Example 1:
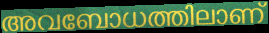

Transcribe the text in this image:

അവബോധത്തിലാണ്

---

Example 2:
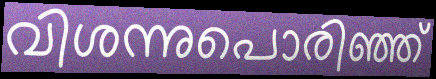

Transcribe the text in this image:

വിശന്നുപൊരിഞ്ഞ്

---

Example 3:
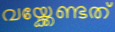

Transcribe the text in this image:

വയ്ക്കേണ്ടത്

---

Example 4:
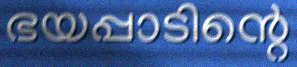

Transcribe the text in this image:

ഭയപ്പാടിന്റെ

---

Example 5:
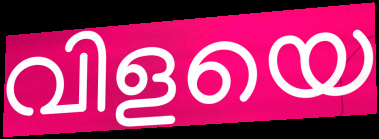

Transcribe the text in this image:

വിളയെ